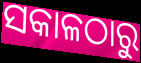
ସକାଳଠାରୁ